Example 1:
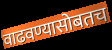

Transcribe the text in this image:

वाढवण्यासोबतच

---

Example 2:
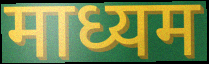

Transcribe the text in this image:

माध्यम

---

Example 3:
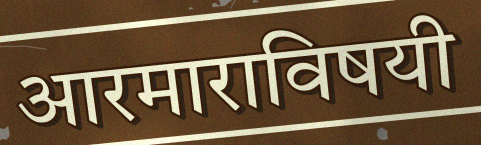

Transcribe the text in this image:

आरमाराविषयी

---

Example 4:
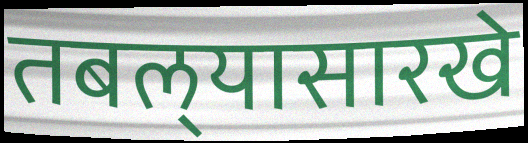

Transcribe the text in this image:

तबल्यासारखे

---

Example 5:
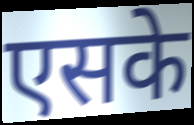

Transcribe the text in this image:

एसके